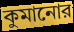
কুমানোর